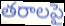
తరాలపై